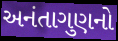
અનંતાગુણનો